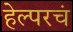
हेल्परचं